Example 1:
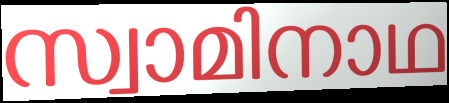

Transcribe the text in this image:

സ്വാമിനാഥ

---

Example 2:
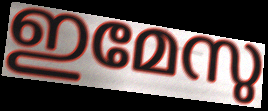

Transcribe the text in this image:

ഇമേസു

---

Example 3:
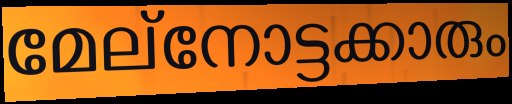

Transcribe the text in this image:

മേല്നോട്ടക്കാരും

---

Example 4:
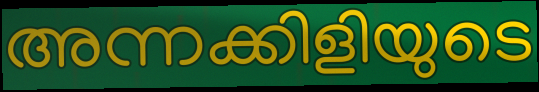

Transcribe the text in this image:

അന്നക്കിളിയുടെ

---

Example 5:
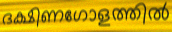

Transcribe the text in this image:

ദക്ഷിണഗോളത്തിൽ